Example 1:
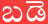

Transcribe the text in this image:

బడె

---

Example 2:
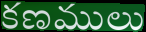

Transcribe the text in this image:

కణములు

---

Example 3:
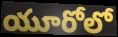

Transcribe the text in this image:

యూరోలో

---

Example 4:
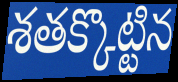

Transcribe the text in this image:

శతక్కొట్టిన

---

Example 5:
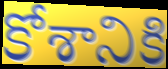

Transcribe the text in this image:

కోశానికి